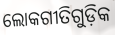
ଲୋକଗୀତିଗୁଡ଼ିକ